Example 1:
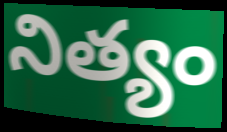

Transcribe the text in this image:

నిత్యం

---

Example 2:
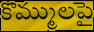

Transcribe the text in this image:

కొమ్ములపై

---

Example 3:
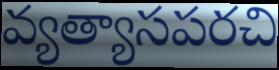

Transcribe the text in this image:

వ్యత్యాసపరచి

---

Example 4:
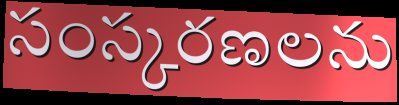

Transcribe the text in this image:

సంస్కరణలను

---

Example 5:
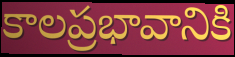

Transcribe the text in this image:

కాలప్రభావానికి